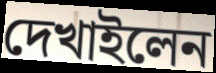
দেখাইলেন